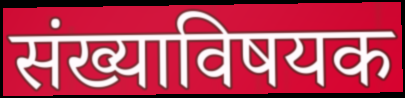
संख्याविषयक